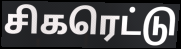
சிகரெட்டு